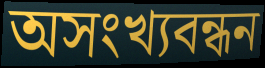
অসংখ্যবন্ধন